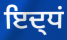
ਇਦ੍ਧਂ